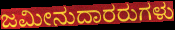
ಜಮೀನುದಾರರುಗಳು